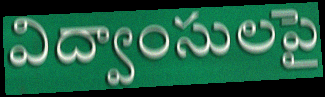
విద్వాంసులపై